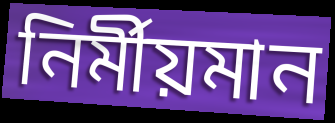
নির্মীয়মান